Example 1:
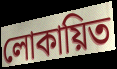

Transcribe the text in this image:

লোকায়িত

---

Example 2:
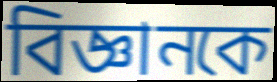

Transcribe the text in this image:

বিজ্ঞানকে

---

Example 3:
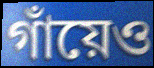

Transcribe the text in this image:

গাঁয়েও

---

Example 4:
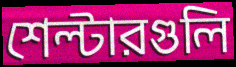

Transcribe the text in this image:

শেল্টারগুলি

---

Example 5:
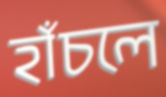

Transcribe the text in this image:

হাঁচলে